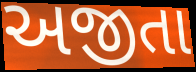
અજીતા